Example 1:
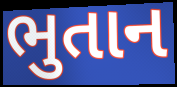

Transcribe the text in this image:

ભુતાન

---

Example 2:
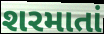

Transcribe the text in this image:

શરમાતાં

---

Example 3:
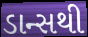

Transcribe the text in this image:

ડાન્સથી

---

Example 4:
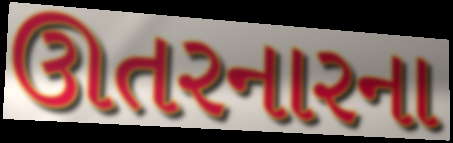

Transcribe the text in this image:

ઊતરનારના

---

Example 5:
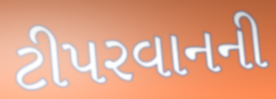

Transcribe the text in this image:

ટીપરવાનની